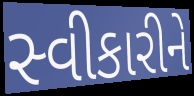
સ્વીકારીને